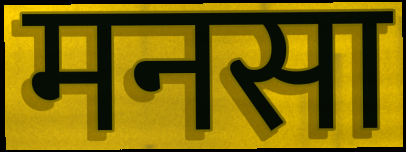
मनसा